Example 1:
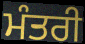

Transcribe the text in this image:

ਮੰਤਰੀ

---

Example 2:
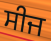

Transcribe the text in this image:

ਸੀਜ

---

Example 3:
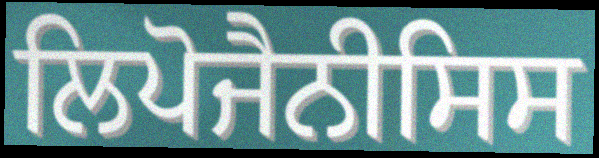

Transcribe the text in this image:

ਲਿਪੋਜੈਨੀਸਿਸ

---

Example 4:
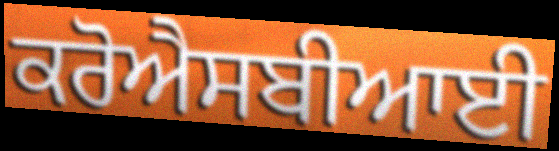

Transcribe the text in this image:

ਕਰੋਐਸਬੀਆਈ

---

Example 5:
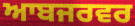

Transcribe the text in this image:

ਆਬਜਰਵਰ